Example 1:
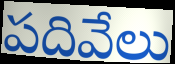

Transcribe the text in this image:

పదివేలు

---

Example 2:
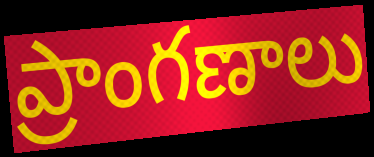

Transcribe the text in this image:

ప్రాంగణాలు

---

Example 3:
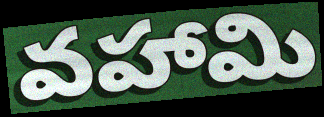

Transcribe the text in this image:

వహామి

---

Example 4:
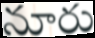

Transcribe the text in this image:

నూరు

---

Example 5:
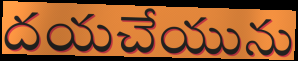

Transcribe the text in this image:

దయచేయును